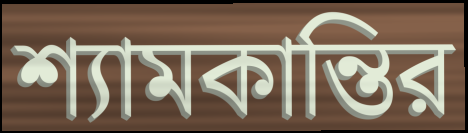
শ্যামকান্তির